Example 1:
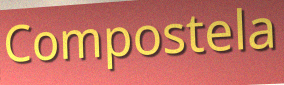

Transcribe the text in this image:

Compostela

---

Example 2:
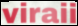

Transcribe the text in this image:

viraii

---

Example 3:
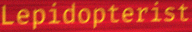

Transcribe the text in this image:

Lepidopterist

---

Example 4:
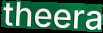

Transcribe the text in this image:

theera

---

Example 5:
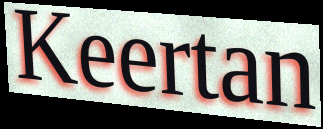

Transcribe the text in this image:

Keertan